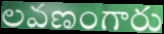
లవణంగారు